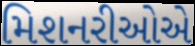
મિશનરીઓએ